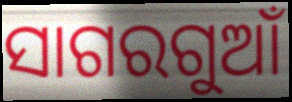
ସାଗରଗୁଆଁ